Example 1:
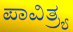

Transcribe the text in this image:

ಪಾವಿತ್ರ್ಯ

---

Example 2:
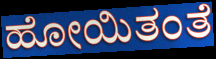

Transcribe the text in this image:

ಹೋಯಿತಂತೆ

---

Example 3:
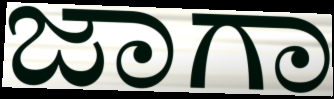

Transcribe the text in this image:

ಜಾಗಾ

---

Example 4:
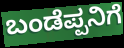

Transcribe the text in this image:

ಬಂಡೆಪ್ಪನಿಗೆ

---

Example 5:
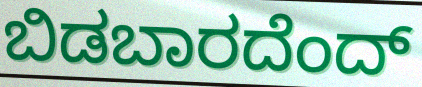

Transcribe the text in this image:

ಬಿಡಬಾರದೆಂದ್